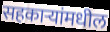
सहकाऱ्यांमधील